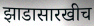
झाडासारखीच